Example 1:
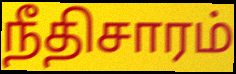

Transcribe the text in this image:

நீதிசாரம்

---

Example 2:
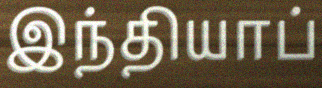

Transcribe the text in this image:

இந்தியாப்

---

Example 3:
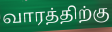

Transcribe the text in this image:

வாரத்திற்கு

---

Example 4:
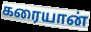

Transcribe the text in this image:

கரையான்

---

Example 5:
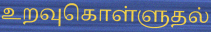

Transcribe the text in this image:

உறவுகொள்ளுதல்